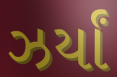
ઝર્યાં